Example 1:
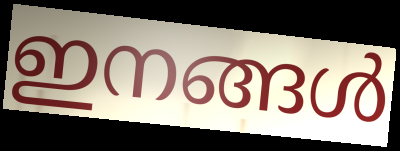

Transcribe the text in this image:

ഇനങ്ങൾ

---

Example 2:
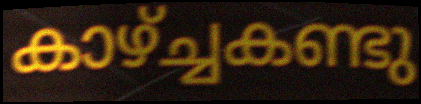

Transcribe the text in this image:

കാഴ്ച്ചകണ്ടു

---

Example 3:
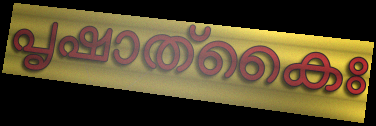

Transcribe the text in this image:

പൃഷാത്കൈഃ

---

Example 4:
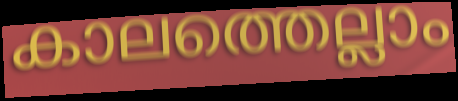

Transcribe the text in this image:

കാലത്തെല്ലാം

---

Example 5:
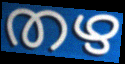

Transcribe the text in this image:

തഴ